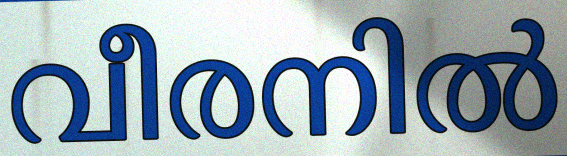
വീരനിൽ